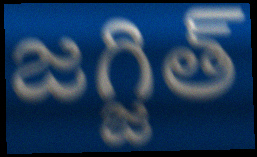
జగ్జిత్